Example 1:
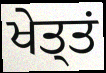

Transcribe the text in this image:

ਖੇਤ੍ਤਂ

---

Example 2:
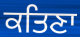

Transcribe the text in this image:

ਕਤਿਣਾ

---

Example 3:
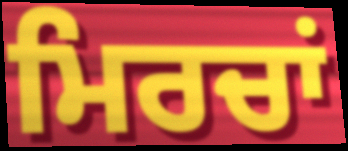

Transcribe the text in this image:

ਮਿਰਚਾਂ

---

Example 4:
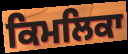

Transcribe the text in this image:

ਕਿਮਲਿਕਾ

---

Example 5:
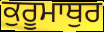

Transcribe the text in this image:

ਕੁਰੂਮਾਥੁਰ